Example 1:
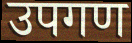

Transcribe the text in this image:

उपगण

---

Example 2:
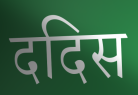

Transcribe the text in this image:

ददिस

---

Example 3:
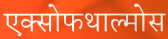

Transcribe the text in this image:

एक्सोफथाल्मोस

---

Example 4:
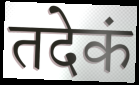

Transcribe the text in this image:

तदेकं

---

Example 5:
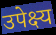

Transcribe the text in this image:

उपेक्ष्य